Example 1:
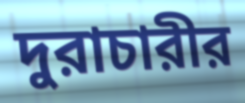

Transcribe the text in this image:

দুরাচারীর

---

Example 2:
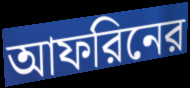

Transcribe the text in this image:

আফরিনের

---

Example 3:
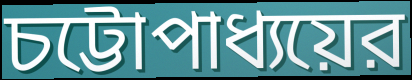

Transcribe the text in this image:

চট্টোপাধ্যয়ের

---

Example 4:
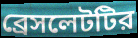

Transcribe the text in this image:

ব্রেসলেটটির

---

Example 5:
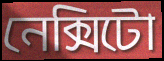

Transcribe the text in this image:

নেক্সিটো